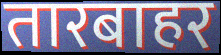
तारबाहर